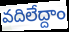
వదిలేద్దాం